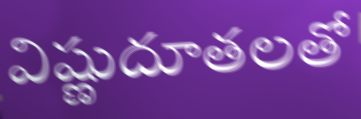
విష్ణుదూతలతో